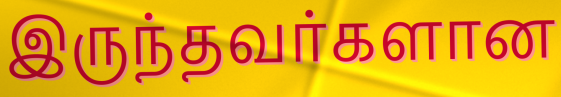
இருந்தவர்களான